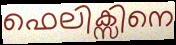
ഫെലിക്സിനെ